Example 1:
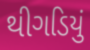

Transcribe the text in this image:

થીગડિયું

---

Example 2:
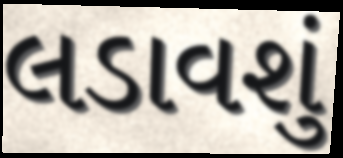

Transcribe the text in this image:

લડાવશું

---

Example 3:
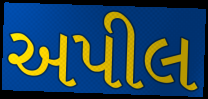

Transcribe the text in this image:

અપીલ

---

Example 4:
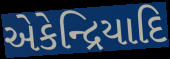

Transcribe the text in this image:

એકેન્દ્રિયાદિ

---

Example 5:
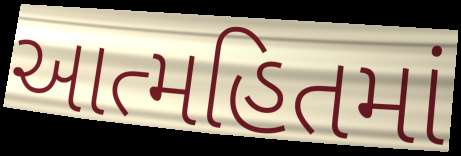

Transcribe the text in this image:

આત્મહિતમાં